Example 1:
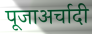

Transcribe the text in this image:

पूजाअर्चादी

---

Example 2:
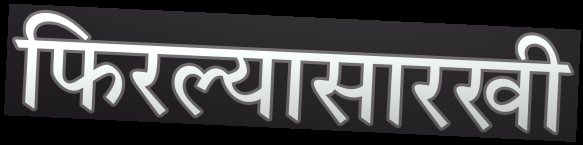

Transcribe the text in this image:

फिरल्यासारखी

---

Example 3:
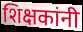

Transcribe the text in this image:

शिक्षकांनी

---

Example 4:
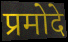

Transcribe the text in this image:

प्रमोदे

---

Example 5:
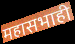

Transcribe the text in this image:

महासभाही